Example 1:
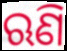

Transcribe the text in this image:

ଋଣି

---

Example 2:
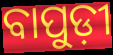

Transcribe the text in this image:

ବାପୁଡ଼ୀ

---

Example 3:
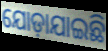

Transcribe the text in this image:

ଯୋଡ଼ାଯାଇଛି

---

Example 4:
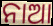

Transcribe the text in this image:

ନାଆ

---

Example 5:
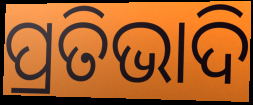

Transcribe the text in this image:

ପ୍ରତିଭାଦି